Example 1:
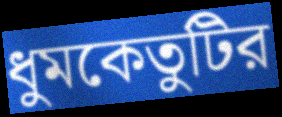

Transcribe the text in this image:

ধুমকেতুটির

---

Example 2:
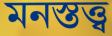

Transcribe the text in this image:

মনস্তত্ত্ব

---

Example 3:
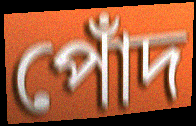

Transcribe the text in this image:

পোঁদ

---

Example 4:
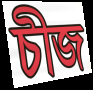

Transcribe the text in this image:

চীজ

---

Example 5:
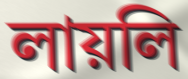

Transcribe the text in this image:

লায়লি